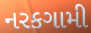
નરકગામી